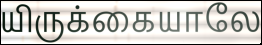
யிருக்கையாலே